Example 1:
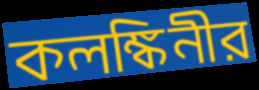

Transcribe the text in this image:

কলঙ্কিনীর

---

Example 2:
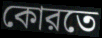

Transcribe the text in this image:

কোরতে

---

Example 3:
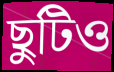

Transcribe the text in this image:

ছুটিও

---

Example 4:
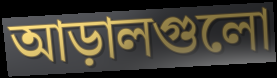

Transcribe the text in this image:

আড়ালগুলো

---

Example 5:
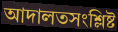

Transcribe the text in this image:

আদালতসংশ্লিষ্ট